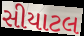
સીયાટલ